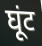
घूंट